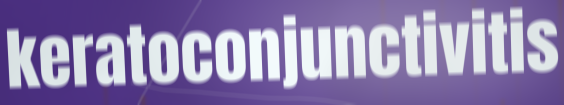
keratoconjunctivitis